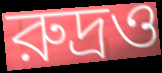
রুদ্রও